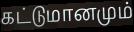
கட்டுமானமும்